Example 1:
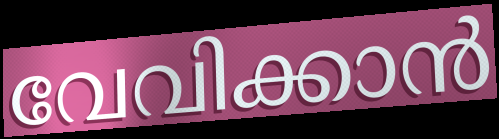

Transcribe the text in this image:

വേവിക്കാൻ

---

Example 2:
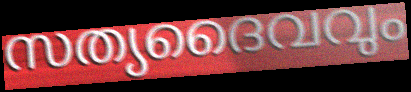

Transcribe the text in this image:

സത്യദൈവവും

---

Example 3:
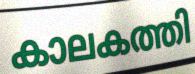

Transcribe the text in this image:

കാലകത്തി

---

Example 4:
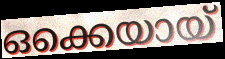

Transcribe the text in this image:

ഒക്കെയായ്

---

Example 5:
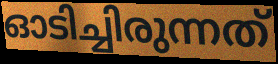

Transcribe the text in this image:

ഓടിച്ചിരുന്നത്